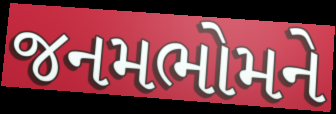
જનમભોમને